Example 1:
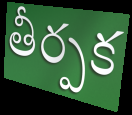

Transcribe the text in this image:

తీర్పక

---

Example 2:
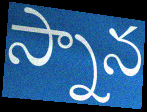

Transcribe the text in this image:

స్నాన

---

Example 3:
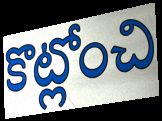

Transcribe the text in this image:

కొట్లోంచి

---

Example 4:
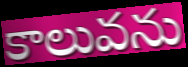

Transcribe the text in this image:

కాలువను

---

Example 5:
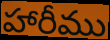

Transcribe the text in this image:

హారీము